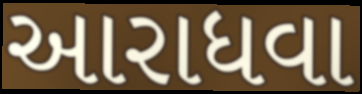
આરાધવા